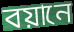
বয়ানে